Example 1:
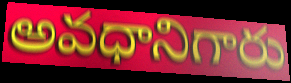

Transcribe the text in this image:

అవధానిగారు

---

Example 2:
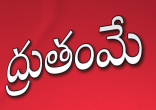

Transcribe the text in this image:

ద్రుతంమే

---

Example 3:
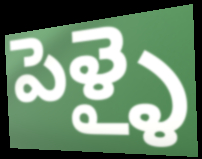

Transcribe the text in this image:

పెళ్ళై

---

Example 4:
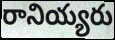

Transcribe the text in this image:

రానియ్యరు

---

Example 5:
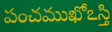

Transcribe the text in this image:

పంచముఖోఽస్తి